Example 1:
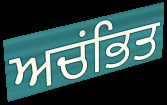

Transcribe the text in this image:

ਅਚਂਭਿਤ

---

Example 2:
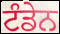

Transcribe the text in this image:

ਟੰਡੇਨ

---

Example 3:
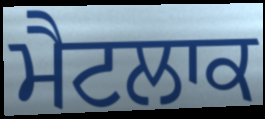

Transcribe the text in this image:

ਮੈਟਲਾਕ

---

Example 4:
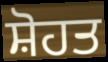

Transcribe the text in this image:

ਸ਼ੋਹਤ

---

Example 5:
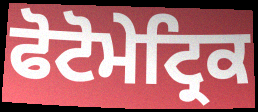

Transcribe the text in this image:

ਫੋਟੋਮੇਟ੍ਰਿਕ